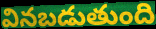
వినబడుతుంది